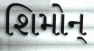
શિમોન્